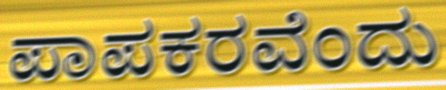
ಪಾಪಕರವೆಂದು